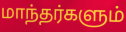
மாந்தர்களும்